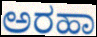
ಅರಹಾ